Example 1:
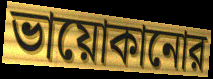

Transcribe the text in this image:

ভায়োকানোর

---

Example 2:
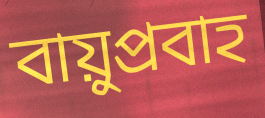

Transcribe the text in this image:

বায়ুপ্রবাহ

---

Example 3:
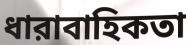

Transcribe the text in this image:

ধারাবাহিকতা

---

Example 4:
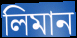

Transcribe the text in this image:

লিমান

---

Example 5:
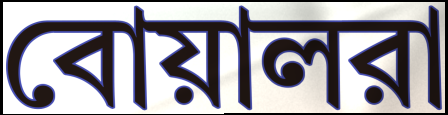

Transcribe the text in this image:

বোয়ালরা